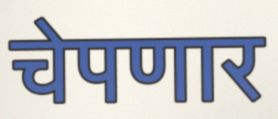
चेपणार